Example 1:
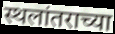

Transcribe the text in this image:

स्थलांतराच्या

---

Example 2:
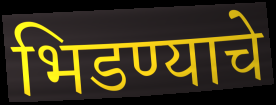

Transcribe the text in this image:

भिडण्याचे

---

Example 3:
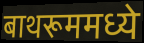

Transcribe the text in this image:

बाथरूममध्ये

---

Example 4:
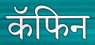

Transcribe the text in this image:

कॅफिन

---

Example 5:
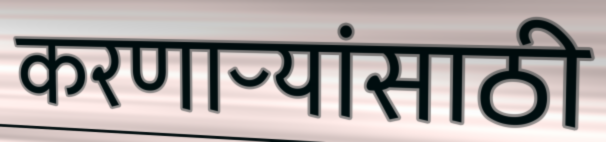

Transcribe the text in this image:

करणाऱ्यांसाठी